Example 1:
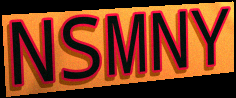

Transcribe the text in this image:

NSMNY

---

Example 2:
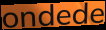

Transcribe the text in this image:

ondede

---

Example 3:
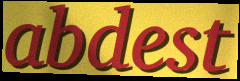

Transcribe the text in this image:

abdest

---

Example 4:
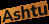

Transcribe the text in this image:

Ashtu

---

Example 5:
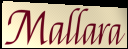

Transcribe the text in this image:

Mallara